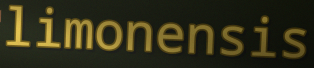
limonensis